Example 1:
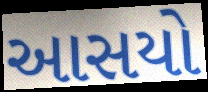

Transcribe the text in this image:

આસયો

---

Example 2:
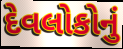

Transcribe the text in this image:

દેવલોકોનું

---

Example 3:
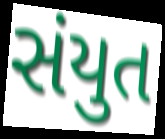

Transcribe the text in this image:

સંયુત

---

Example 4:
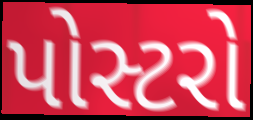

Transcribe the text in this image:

પોસ્ટરો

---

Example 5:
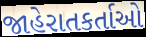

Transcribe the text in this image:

જાહેરાતકર્તાઓ